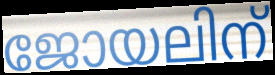
ജോയലിന്